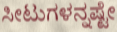
ಸೀಟುಗಳನ್ನಷ್ಟೇ